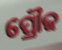
ପ୍ରୌଢ